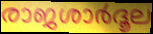
രാജശാർദൂല